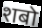
शबो